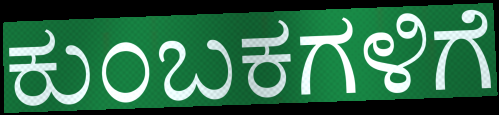
ಕುಂಬಕಗಳಿಗೆ